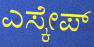
ಎಸ್ಕೇಪ್